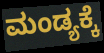
ಮಂಡ್ಯಕ್ಕೆ